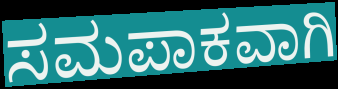
ಸಮಪಾಕವಾಗಿ